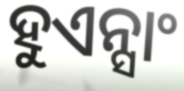
ହୁଏନ୍ସାଂ